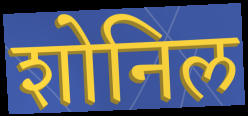
शोनिल